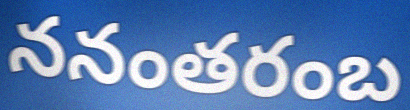
ననంతరంబ